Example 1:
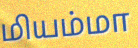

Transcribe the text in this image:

மியம்மா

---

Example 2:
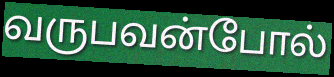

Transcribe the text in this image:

வருபவன்போல்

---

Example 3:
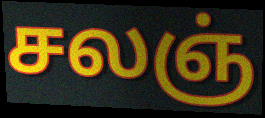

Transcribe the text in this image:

சலஞ்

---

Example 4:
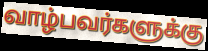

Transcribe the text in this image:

வாழ்பவர்களுக்கு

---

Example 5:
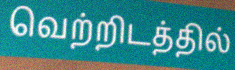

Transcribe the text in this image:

வெற்றிடத்தில்